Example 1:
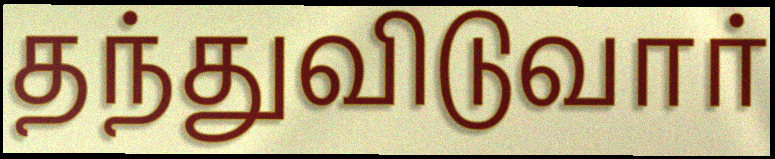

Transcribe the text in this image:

தந்துவிடுவார்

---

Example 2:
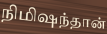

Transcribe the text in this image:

நிமிஷந்தான்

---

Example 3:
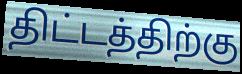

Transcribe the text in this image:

திட்டத்திற்கு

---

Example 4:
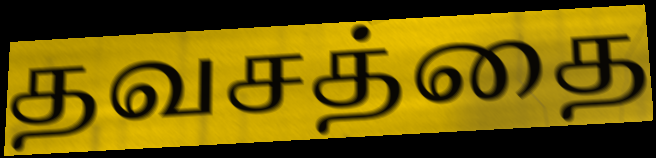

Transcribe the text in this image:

தவசத்தை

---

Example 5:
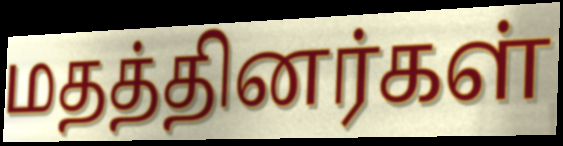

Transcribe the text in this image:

மதத்தினர்கள்